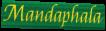
Mandaphala